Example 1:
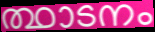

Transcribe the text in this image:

ത്ഥാടനം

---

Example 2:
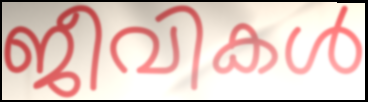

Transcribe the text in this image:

ജീവികൾ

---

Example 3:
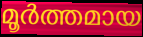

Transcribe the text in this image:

മൂർത്തമായ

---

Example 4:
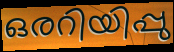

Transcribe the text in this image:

ഒരറിയിപ്പു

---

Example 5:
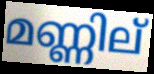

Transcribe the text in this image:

മണ്ണില്